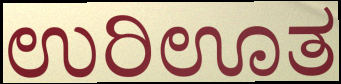
ಉರಿಊತ